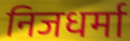
निजधर्मा